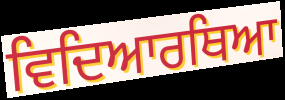
ਵਿਦਿਆਰਥਿਆ